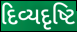
દિવ્યદૃષ્ટિ